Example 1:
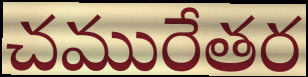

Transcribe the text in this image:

చమురేతర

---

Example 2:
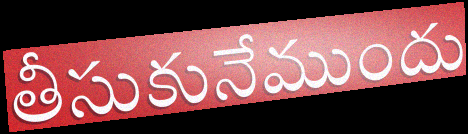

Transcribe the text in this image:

తీసుకునేముందు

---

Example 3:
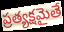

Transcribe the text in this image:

ప్రత్యక్షమైతే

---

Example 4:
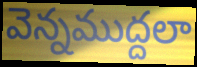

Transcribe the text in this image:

వెన్నముద్దలా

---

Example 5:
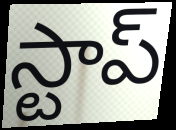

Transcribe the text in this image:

స్టాప్